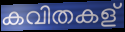
കവിതകള്